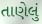
તાણેલું